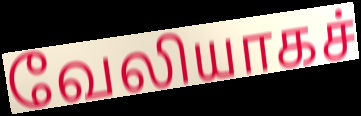
வேலியாகச்